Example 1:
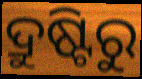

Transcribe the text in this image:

ଦ୍ରୁଷ୍ଟିରୁ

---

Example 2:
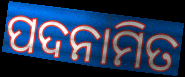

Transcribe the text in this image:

ପଦନାମିତ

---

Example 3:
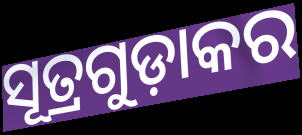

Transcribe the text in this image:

ସୂତ୍ରଗୁଡ଼ାକର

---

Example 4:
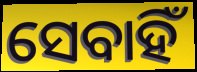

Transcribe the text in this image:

ସେବାହିଁ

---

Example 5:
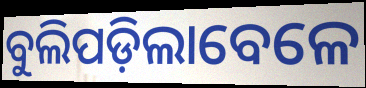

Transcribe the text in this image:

ବୁଲିପଡ଼ିଲାବେଳେ